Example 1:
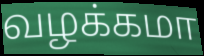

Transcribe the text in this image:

வழக்கமா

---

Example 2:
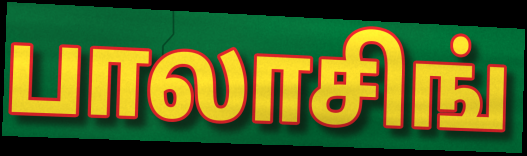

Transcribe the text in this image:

பாலாசிங்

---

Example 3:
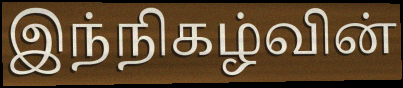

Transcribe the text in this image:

இந்நிகழ்வின்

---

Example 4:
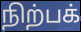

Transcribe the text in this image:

நிற்பக்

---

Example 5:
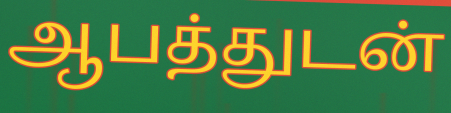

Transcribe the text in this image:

ஆபத்துடன்